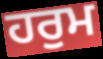
ਹਰੁਮ